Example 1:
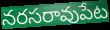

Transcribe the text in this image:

నరసరావుపేట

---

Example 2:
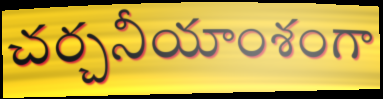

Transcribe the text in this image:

చర్చనీయాంశంగా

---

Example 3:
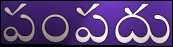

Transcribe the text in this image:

పంపదు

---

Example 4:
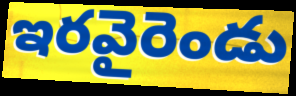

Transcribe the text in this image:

ఇరవైరెండు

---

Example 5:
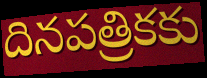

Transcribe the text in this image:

దినపత్రికకు